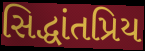
સિદ્ધાંતપ્રિય